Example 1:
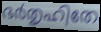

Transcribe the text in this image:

ഭർതൃഹിതേ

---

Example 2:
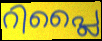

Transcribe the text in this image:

റിപ്ലൈ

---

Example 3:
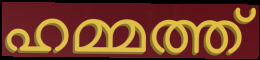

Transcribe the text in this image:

ഹമ്മത്ത്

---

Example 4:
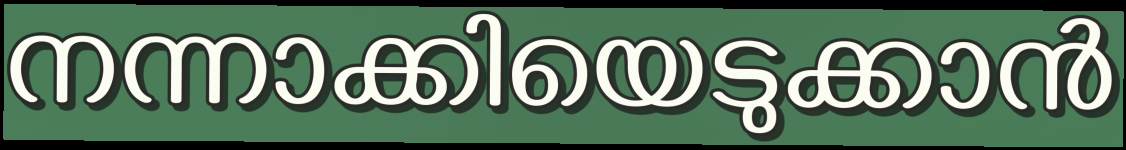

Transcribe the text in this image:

നന്നാക്കിയെടുക്കാൻ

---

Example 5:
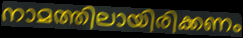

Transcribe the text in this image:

നാമത്തിലായിരിക്കണം